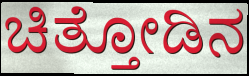
ಚಿತ್ತೋಡಿನ